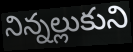
నిన్నల్లుకుని